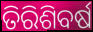
ତିରିଶିବର୍ଷ